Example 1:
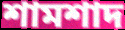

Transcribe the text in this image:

শামশাদ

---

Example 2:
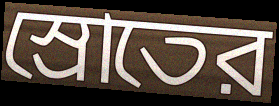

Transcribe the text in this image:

স্রোতের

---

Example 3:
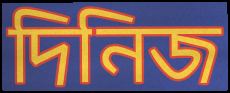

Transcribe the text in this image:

দিনিজ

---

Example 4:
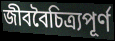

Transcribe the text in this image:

জীববৈচিত্র্যপূর্ণ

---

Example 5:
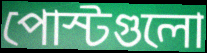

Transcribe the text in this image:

পোস্টগুলো